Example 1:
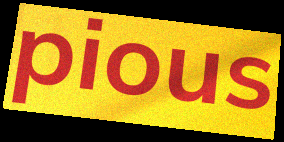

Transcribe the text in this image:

pious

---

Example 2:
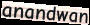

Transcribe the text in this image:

anandwan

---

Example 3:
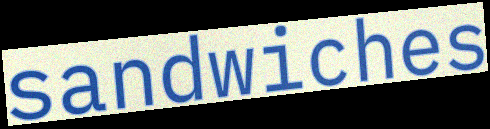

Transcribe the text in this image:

sandwiches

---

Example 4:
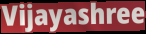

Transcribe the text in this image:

Vijayashree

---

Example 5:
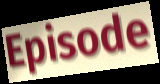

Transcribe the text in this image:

Episode